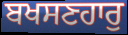
ਬਖਸਣਹਾਰੁ